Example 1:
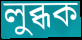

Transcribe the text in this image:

লুব্ধক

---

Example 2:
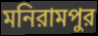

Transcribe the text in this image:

মনিরামপুর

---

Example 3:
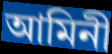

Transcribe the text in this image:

আমিনী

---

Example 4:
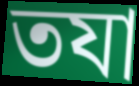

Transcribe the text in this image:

তযা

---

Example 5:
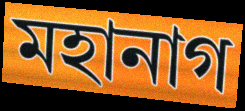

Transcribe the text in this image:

মহানাগ